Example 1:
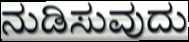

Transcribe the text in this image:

ನುಡಿಸುವುದು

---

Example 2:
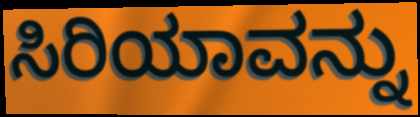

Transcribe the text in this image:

ಸಿರಿಯಾವನ್ನು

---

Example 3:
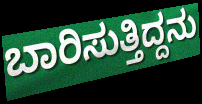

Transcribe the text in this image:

ಬಾರಿಸುತ್ತಿದ್ದನು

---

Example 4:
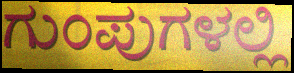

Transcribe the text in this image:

ಗುಂಪುಗಳಲ್ಲಿ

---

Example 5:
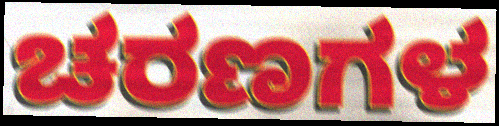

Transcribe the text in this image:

ಚರಣಗಳ